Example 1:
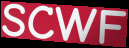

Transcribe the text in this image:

SCWF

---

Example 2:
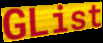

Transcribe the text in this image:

GList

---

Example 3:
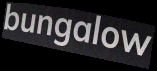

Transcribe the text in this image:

bungalow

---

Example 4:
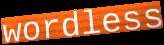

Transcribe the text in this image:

wordless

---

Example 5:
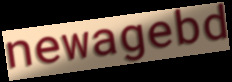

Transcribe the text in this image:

newagebd